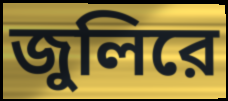
জুলিরে